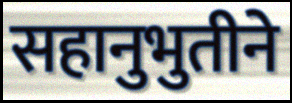
सहानुभुतीने